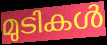
മുടികൾ